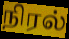
நிரல்